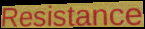
Resistance